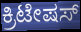
ಕ್ರಿಟೇಷಸ್